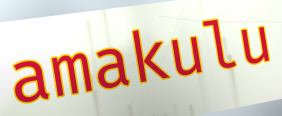
amakulu